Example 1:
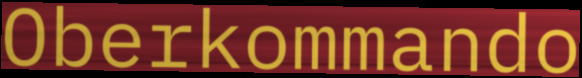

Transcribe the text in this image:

Oberkommando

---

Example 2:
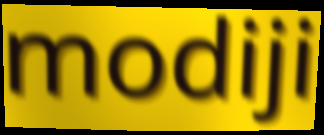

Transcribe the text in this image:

modiji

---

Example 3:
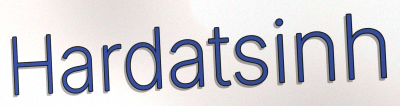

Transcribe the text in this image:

Hardatsinh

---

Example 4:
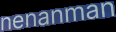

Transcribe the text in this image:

nenanman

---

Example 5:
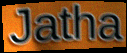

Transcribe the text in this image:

Jatha